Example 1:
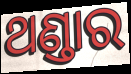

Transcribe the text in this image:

ଥଣ୍ଡାର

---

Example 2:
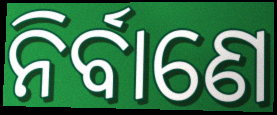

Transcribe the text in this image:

ନିର୍ବାଣେ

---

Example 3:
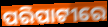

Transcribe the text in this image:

ପରିପାଟୀରେ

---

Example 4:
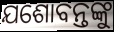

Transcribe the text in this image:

ଯଶୋବନ୍ତଙ୍କୁ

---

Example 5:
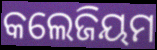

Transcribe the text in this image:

କଲେଜିୟମ